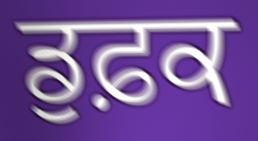
ਡੁਫ਼ਕ